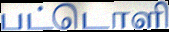
பட்டொளி